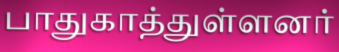
பாதுகாத்துள்ளனர்